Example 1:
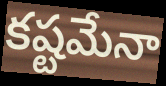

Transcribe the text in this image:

కష్టమేనా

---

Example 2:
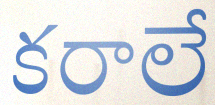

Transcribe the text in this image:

కరాలే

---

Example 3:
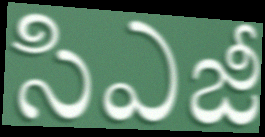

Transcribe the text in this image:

సిఎజీ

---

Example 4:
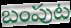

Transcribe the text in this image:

బంపుట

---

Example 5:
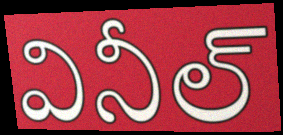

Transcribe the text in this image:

వినీల్